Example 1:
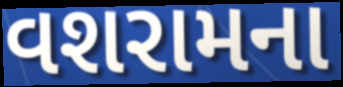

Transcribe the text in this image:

વશરામના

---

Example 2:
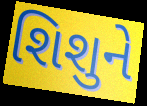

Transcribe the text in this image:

શિશુને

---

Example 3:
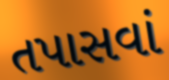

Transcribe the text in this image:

તપાસવાં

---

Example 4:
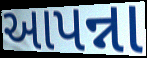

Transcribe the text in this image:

આપન્ના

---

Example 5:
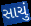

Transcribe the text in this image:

સાચું